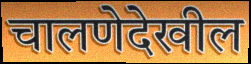
चालणेदेखील